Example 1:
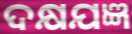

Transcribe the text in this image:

ଦକ୍ଷଯଜ୍ଞ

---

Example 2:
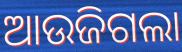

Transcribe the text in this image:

ଆଉଜିଗଲା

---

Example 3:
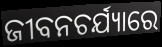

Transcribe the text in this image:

ଜୀବନଚର୍ଯ୍ୟାରେ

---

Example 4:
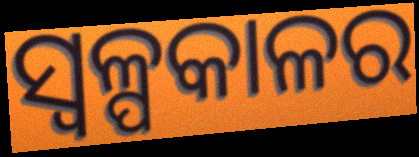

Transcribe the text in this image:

ସ୍ୱଳ୍ପକାଳର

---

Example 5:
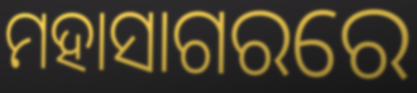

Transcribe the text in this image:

ମହାସାଗରରେ